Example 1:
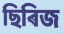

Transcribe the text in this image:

ছিৰিজ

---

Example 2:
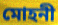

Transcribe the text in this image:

মোহনী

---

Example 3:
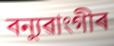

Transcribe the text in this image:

বন্যুৱাংগীৰ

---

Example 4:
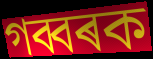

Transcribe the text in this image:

গব্বৰক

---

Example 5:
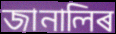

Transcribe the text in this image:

জানালিৰ